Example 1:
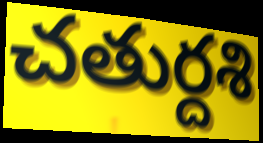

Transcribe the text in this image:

చతుర్దశి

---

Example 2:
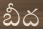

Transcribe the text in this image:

బీద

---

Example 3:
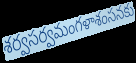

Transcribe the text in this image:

శర్వసర్వమంగళాశంసనకు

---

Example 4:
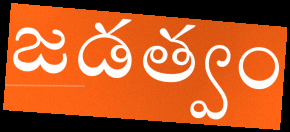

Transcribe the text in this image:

జడత్వం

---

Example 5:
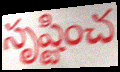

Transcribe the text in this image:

సృష్టించ